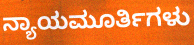
ನ್ಯಾಯಮೂರ್ತಿಗಳು